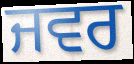
ਜਵਰ